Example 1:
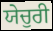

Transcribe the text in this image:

ਯੇਚੁਰੀ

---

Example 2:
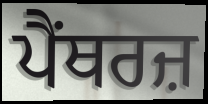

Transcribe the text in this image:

ਪੈਂਥਰਜ਼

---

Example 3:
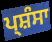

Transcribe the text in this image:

ਪ੍ਸ਼ੰਸਾ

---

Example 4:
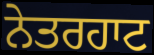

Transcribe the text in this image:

ਨੇਤਰਹਾਟ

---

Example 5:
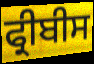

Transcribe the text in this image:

ਫ੍ਰੀਬੀਸ